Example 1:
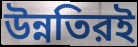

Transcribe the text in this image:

উন্নতিরই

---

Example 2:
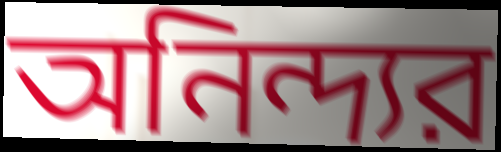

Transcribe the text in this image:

অনিন্দ্যর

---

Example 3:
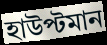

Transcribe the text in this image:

হাউপ্টমান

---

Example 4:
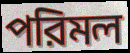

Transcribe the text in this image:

পরিমল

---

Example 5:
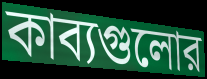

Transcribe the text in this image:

কাব্যগুলোর